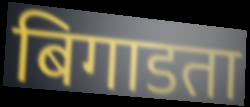
बिगाडता